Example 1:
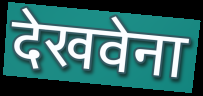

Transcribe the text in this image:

देखवेना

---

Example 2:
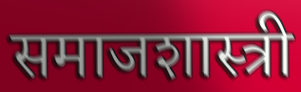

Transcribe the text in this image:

समाजशास्त्री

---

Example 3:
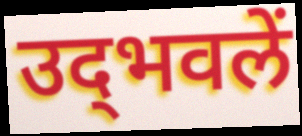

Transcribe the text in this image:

उद्‍भवलें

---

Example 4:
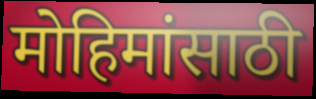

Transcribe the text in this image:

मोहिमांसाठी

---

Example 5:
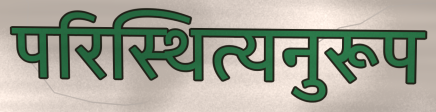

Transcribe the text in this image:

परिस्थित्यनुरूप